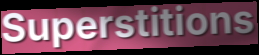
Superstitions